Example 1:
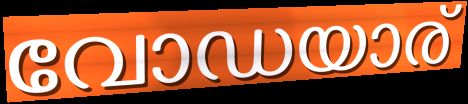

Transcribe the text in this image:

വോഡയാര്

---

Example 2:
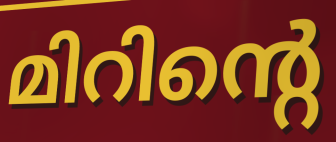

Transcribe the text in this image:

മിറിന്റെ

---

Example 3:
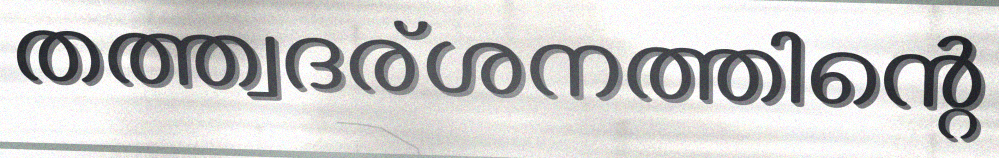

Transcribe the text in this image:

തത്ത്വദര്ശനത്തിന്റെ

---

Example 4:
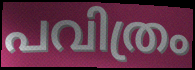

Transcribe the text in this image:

പവിത്രം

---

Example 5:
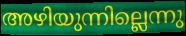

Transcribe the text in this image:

അഴിയുന്നില്ലെന്നു